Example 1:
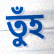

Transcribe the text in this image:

তুঁহ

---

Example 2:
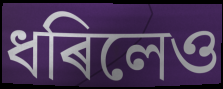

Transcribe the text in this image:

ধৰিলেও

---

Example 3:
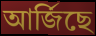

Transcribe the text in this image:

আৰ্জিছে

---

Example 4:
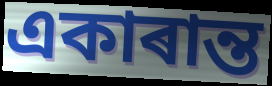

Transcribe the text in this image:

একাৰান্ত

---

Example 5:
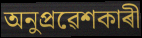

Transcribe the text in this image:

অনুপ্ৰৱেশকাৰী